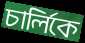
চার্লিকে